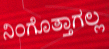
ನಿಂಗೊತ್ತಾಗಲ್ಲ